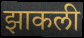
झाकली